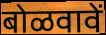
बोळवावें